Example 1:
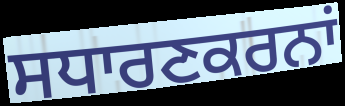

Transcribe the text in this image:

ਸਧਾਰਣਕਰਨਾਂ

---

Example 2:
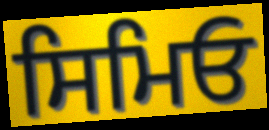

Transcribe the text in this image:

ਸਿਮਿਓ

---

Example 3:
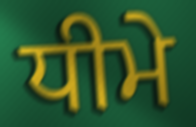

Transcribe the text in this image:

ਧੀਮੇ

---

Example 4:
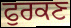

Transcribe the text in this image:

ਫੁਰਕਣ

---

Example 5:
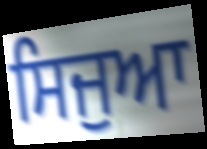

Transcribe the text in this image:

ਸਿਜੁਆ